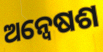
ଅନ୍ୱେଷଶ